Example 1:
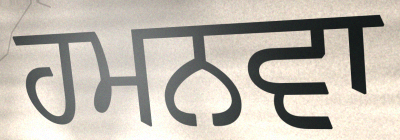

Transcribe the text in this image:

ਹਮਨਵਾ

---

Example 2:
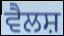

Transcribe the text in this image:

ਵੈਲਸ਼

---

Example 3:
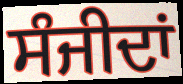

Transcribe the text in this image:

ਸੰਜੀਦਾਂ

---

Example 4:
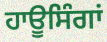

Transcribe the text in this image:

ਹਾਊਸਿੰਗਾਂ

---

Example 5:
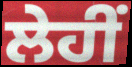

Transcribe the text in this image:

ਲੇਹੀਂ